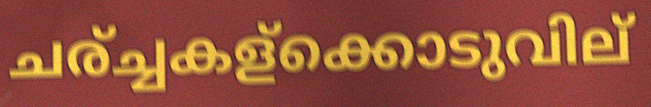
ചര്ച്ചകള്ക്കൊടുവില്